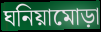
ঘনিয়ামোড়া